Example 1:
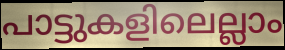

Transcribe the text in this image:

പാട്ടുകളിലെല്ലാം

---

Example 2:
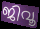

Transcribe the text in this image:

ജിവൂ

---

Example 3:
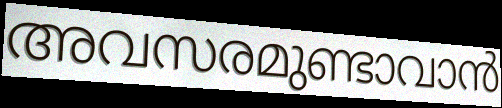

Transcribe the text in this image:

അവസരമുണ്ടാവാൻ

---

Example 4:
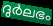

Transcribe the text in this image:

ദുർലഭം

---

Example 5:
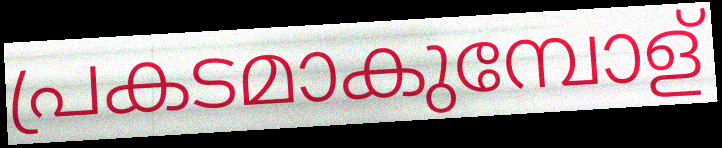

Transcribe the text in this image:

പ്രകടമാകുമ്പോള്